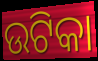
ଉଟିକା